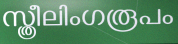
സ്ത്രീലിംഗരൂപം